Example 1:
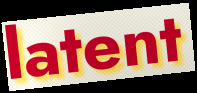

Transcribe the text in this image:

latent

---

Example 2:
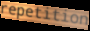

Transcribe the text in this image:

repetition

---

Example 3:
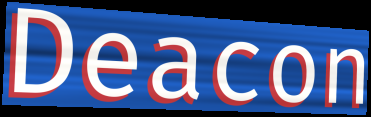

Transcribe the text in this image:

Deacon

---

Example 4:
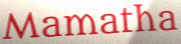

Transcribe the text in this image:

Mamatha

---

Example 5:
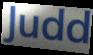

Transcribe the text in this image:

Judd